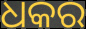
ଧକର